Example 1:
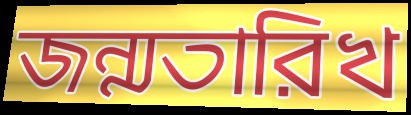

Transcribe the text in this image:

জন্মতারিখ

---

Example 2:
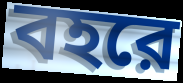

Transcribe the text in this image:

বহরে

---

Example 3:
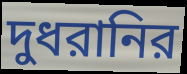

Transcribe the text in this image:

দুধরানির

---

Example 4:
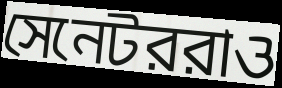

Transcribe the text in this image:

সেনেটররাও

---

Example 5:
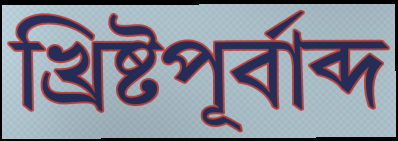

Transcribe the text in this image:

খ্রিষ্টপূর্বাব্দ